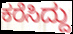
ಕರೆಸಿದ್ದು